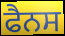
ਫੈਨਸ